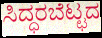
ಸಿದ್ಧರಬೆಟ್ಟದ